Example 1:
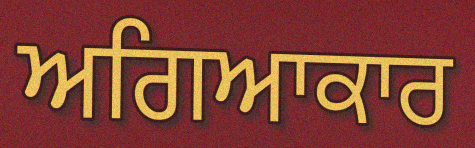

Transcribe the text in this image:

ਅਗਿਆਕਾਰ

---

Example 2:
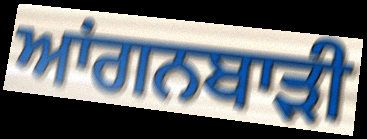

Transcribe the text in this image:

ਆਂਗਨਬਾੜੀ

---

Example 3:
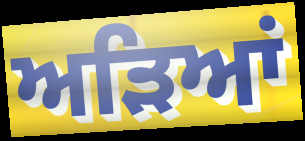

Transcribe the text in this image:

ਅੜਿਆਂ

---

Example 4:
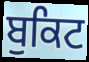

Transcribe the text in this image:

ਬੁਕਿਟ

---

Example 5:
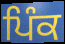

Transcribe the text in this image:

ਪਿੰਕ